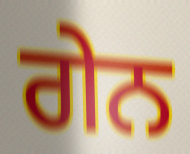
ਗੇਨ